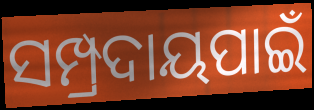
ସମ୍ପ୍ରଦାୟପାଇଁ